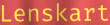
Lenskart